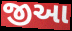
જીઆ